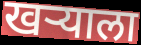
खर्‍याला